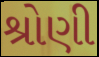
શ્રોણી